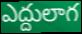
ఎద్దులాగ